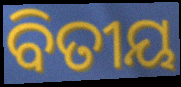
ବିତୀୟ